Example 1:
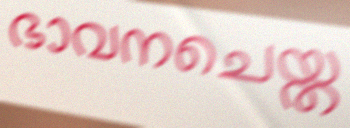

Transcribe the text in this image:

ഭാവനചെയ്ത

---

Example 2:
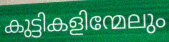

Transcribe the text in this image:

കുട്ടികളിന്മേലും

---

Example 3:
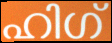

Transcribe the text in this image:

ഹിഗ്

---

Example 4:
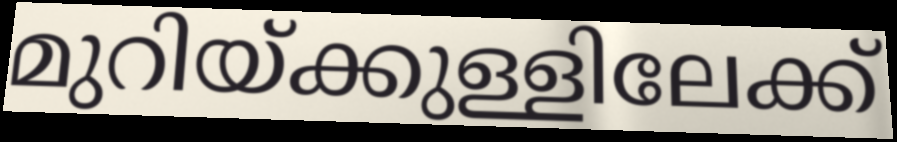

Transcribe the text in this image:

മുറിയ്ക്കുള്ളിലേക്ക്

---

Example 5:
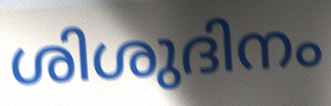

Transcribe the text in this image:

ശിശുദിനം